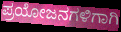
ಪ್ರಯೋಜನಗಳಿಗಾಗಿ